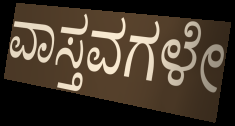
ವಾಸ್ತವಗಳೇ